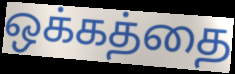
ஒக்கத்தை